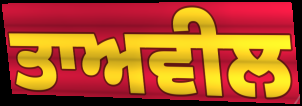
ਤਾਅਵੀਲ